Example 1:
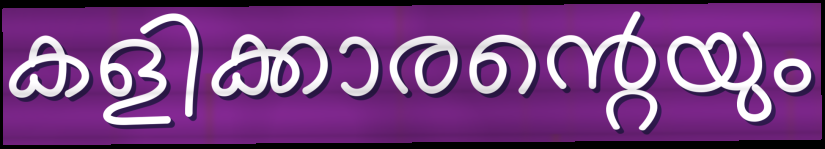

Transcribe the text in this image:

കളിക്കാരന്റെയും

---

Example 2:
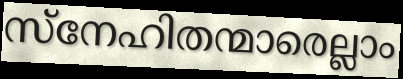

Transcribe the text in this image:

സ്നേഹിതന്മാരെല്ലാം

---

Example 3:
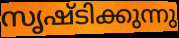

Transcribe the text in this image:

സൃഷ്ടിക്കുന്നു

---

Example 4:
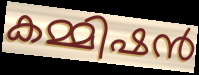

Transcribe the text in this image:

കമ്മിഷൻ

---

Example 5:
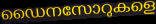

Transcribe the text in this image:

ഡൈനസോറുകളെ